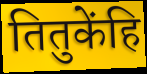
तितुकेंहि